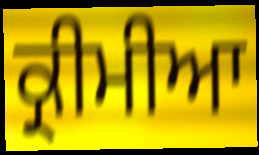
ਕ੍ਰੀਮੀਆ